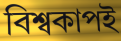
বিশ্বকাপই